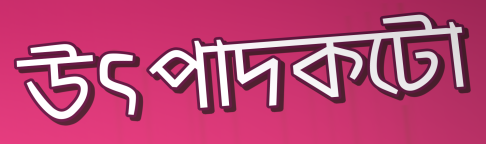
উৎপাদকটো